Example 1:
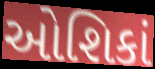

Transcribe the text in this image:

ઓશિકાં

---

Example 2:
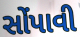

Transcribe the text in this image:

સોંપાવી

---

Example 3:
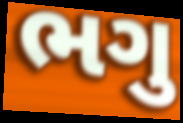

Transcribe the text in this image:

ભગુ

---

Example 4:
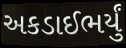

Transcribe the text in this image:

અકડાઈભર્યું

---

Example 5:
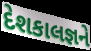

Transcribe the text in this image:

દેશકાલજ્ઞને